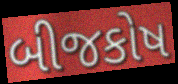
બીજકોષ